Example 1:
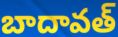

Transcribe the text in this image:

బాదావత్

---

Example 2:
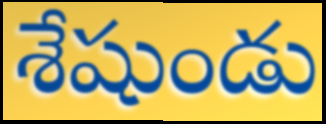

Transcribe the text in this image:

శేషుండు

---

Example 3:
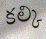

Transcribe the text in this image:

కల్కి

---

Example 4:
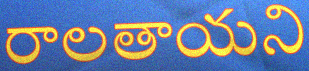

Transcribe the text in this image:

రాలతాయని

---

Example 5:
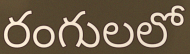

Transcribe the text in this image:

రంగులలో